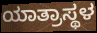
ಯಾತ್ರಾಸ್ಥಳ